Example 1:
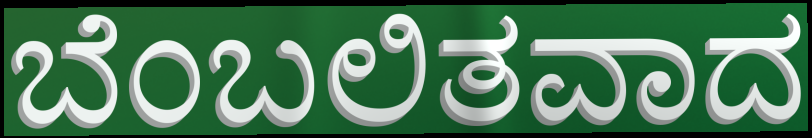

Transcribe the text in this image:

ಬೆಂಬಲಿತವಾದ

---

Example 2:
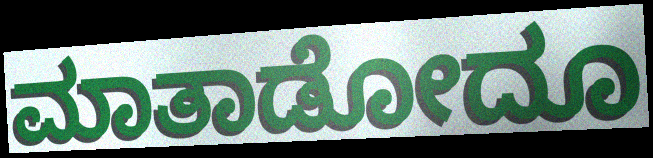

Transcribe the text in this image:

ಮಾತಾಡೋದೂ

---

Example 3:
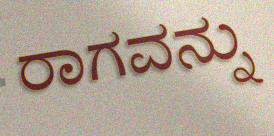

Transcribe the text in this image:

ರಾಗವನ್ನು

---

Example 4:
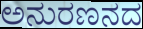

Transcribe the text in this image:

ಅನುರಣನದ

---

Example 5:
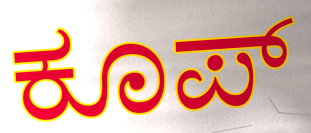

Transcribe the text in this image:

ಕೂಪ್